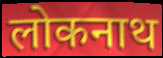
लोकनाथ